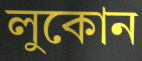
লুকোন